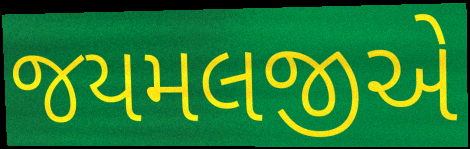
જયમલજીએ